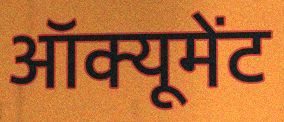
ऑक्यूमेंट